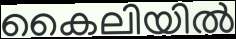
കൈലിയിൽ